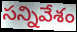
సన్నివేశం